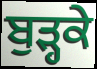
ਬੁੜ੍ਹਕੇ